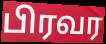
பிரவர